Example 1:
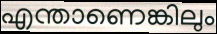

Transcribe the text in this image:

എന്താണെങ്കിലും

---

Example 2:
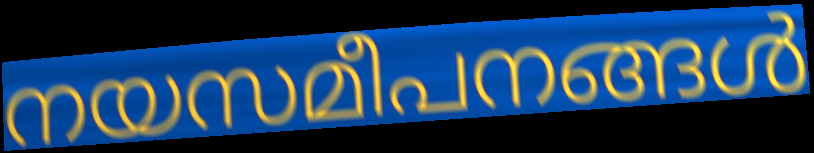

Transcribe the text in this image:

നയസമീപനങ്ങൾ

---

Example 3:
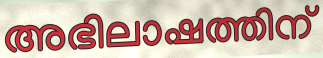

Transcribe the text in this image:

അഭിലാഷത്തിന്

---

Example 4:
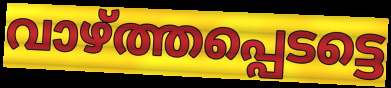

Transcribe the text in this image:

വാഴ്ത്തപ്പെടട്ടെ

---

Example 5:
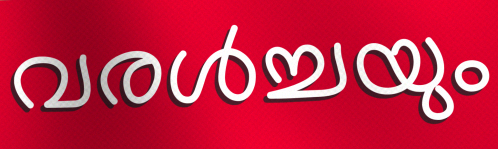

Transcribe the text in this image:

വരൾച്ചയും